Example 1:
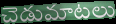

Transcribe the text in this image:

చెడుమాటలు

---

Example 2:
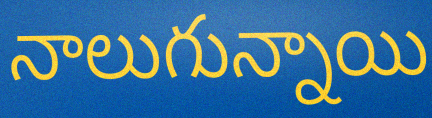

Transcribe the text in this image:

నాలుగున్నాయి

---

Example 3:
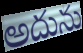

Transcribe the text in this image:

అదును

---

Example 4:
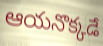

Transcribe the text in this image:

ఆయనొక్కడే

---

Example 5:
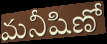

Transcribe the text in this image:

మనీషిణో